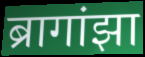
ब्रागांझा